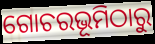
ଗୋଚରଭୂମିଠାରୁ